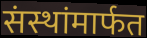
संस्थांमार्फत